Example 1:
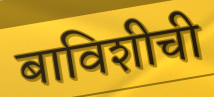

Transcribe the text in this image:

बाविशीची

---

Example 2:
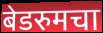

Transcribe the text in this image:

बेडरुमचा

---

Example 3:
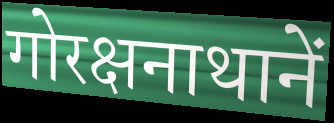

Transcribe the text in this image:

गोरक्षनाथानें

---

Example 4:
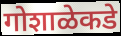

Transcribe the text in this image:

गोशाळेकडे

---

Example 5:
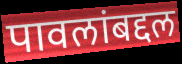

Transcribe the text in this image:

पावलांबद्दल